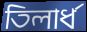
তিলার্ধ